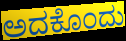
ಅದಕೊಂದು